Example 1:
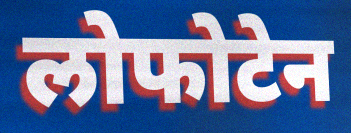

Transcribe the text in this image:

लोफोटेन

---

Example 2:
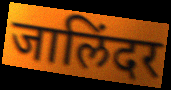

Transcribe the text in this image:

जालिंदर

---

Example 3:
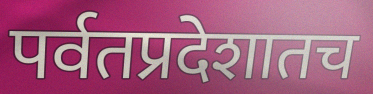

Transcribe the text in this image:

पर्वतप्रदेशातच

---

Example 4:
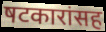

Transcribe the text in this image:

षटकारांसह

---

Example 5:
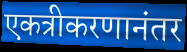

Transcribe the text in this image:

एकत्रीकरणानंतर